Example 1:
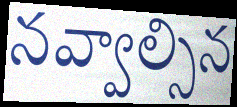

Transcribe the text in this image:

నవ్వాల్సిన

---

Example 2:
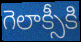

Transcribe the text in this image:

గెలాక్సీకి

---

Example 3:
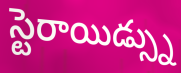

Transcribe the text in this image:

స్టెరాయిడ్స్ను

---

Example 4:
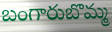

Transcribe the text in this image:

బంగారుబొమ్మ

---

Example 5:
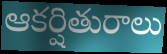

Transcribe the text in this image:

ఆకర్షితురాలు